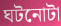
ঘটনোটা